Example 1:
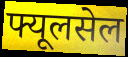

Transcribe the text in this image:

फ्यूलसेल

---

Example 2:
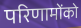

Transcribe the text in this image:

परिणामोंको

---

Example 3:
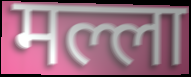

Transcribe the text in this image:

मल्‍ला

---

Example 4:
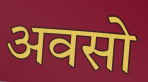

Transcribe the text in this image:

अवसो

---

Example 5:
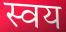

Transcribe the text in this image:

स्वय